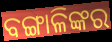
ବଙ୍ଗାଳିଙ୍କର